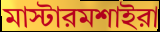
মাস্টারমশাইরা